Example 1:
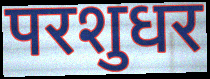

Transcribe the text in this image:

परशुधर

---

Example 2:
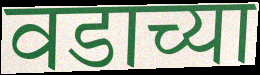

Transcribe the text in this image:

वडाच्या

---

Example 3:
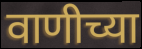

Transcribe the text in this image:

वाणीच्या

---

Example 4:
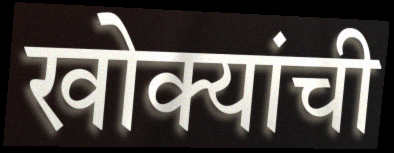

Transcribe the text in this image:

खोक्यांची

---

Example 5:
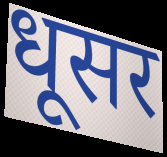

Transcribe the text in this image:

धूसर